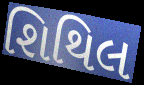
શિથિલ